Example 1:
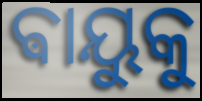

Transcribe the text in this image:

ଵାୟୁକୁ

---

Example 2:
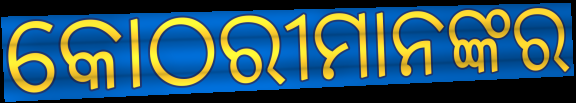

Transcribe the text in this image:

କୋଠରୀମାନଙ୍କର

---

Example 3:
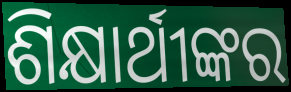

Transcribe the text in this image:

ଶିକ୍ଷାର୍ଥୀଙ୍କର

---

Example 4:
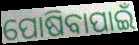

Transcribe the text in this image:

ପୋଷିବାପାଇଁ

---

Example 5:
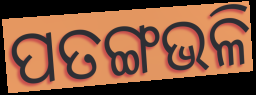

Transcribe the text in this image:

ପତଙ୍ଗଭଳି